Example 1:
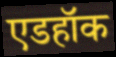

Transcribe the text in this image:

एडहॉक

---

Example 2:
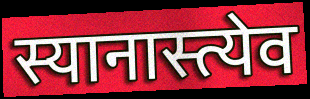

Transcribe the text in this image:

स्यानास्त्येव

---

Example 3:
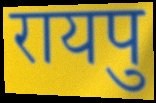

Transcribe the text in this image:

रायपु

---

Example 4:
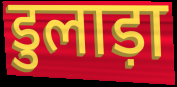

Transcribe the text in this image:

डुलाड़ा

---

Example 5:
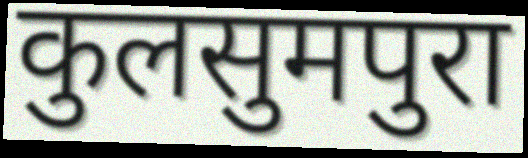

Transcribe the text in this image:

कुलसुमपुरा